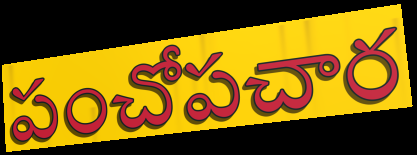
పంచోపచార